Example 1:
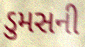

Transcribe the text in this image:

ડુમસની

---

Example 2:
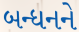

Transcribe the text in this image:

બન્ધનને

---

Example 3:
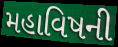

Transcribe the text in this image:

મહાવિષની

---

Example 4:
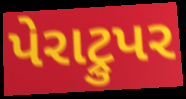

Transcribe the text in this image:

પેરાટ્રુપર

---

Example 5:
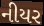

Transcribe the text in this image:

નીયર